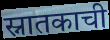
स्नातकाची